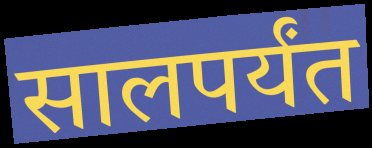
सालपर्यंत